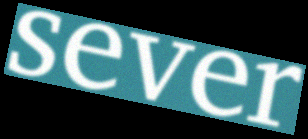
sever